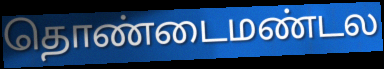
தொண்டைமண்டல